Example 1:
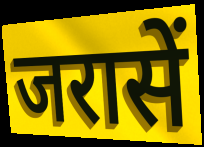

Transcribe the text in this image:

जरासें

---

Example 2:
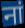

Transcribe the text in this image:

नां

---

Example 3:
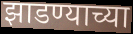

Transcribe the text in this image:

झाडण्याच्या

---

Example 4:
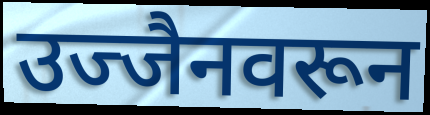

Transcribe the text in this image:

उज्जैनवरून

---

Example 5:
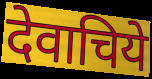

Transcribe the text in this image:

देवाचिये